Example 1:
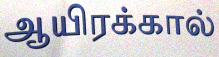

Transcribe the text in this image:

ஆயிரக்கால்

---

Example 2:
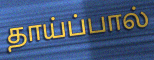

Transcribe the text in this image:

தாய்ப்பால்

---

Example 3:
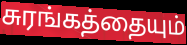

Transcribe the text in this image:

சுரங்கத்தையும்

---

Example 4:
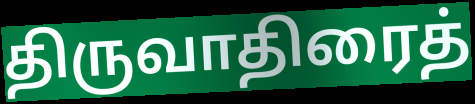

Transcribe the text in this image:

திருவாதிரைத்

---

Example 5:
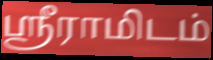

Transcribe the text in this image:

ஸ்ரீராமிடம்